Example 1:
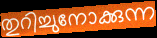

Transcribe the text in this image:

തുറിച്ചുനോക്കുന്ന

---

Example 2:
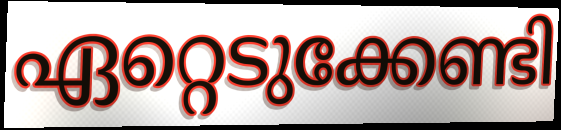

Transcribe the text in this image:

ഏറ്റെടുക്കേണ്ടി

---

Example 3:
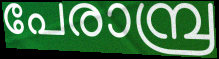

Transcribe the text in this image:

പേരാമ്പ്ര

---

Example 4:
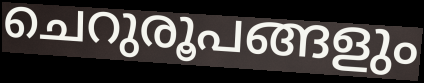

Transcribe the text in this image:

ചെറുരൂപങ്ങളും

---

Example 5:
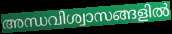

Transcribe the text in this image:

അന്ധവിശ്വാസങ്ങളിൽ